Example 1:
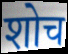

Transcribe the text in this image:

शोच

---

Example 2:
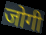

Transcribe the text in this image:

जोगी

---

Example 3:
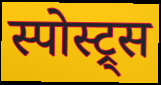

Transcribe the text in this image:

स्पोस्ट्र्स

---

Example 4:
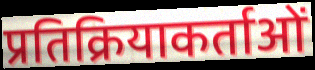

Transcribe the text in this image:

प्रतिक्रियाकर्ताओं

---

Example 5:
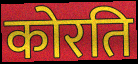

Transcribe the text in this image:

कोरति